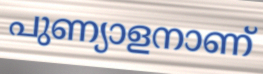
പുണ്യാളനാണ്